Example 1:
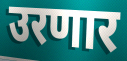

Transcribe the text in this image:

उरणार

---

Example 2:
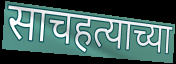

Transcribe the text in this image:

साचहत्याच्या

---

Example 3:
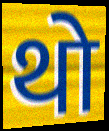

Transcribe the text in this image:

थो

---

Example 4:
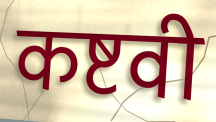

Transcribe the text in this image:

कष्टवी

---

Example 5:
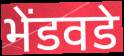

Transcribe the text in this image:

भेंडवडे